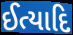
ઈત્યાદિ